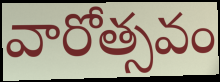
వారోత్సవం